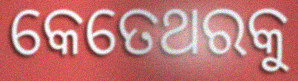
କେତେଥରକୁ